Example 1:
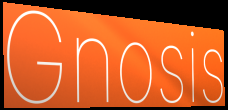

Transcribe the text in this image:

Gnosis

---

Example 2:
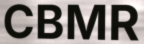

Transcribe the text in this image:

CBMR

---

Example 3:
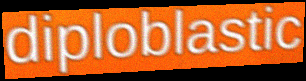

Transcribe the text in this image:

diploblastic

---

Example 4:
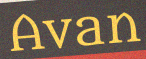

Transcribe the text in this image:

Avan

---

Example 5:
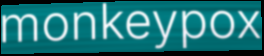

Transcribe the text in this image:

monkeypox